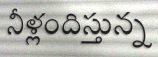
నీళ్లందిస్తున్న